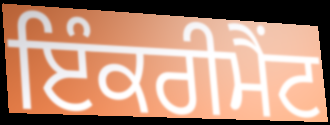
ਇੰਕਰੀਮੈਂਟ